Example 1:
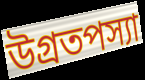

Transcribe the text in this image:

উগ্রতপস্যা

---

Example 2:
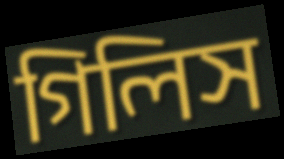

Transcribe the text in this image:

গিলিস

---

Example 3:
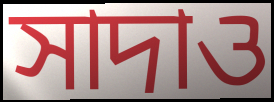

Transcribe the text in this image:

সাদাও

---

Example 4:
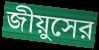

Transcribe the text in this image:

জীয়ুসের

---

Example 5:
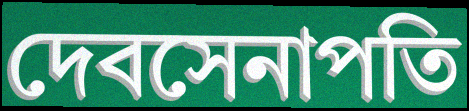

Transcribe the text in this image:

দেবসেনাপতি